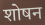
शोषन